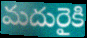
మదురైకి